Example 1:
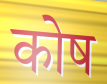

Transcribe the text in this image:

कोष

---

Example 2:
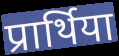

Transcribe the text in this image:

प्रार्थिया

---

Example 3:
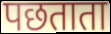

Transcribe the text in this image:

पछताता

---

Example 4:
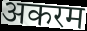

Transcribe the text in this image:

अकरम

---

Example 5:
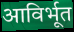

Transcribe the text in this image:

आविर्भूत